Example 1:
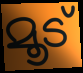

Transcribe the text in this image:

മൂട്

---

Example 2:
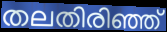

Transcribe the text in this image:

തലതിരിഞ്ഞ്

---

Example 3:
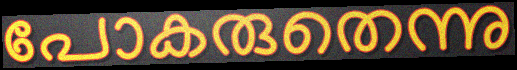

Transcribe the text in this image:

പോകരുതെന്നു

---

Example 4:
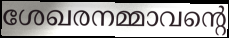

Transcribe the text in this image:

ശേഖരനമ്മാവന്റെ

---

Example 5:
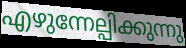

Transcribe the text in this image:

എഴുന്നേല്പിക്കുന്നു